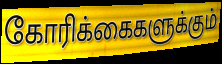
கோரிக்கைகளுக்கும்